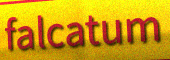
falcatum